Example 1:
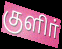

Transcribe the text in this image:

குளிர்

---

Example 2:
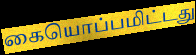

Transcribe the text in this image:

கையொப்பமிட்டது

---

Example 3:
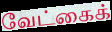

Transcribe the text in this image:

வேட்கைக்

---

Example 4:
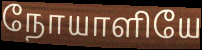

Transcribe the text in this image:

நோயாளியே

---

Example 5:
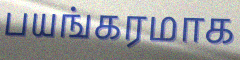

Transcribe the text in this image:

பயங்கரமாக